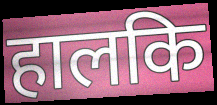
हालकि